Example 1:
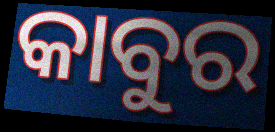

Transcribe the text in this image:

କାବୁର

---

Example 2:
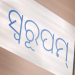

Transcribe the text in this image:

ସ୍ୱରୂପମ୍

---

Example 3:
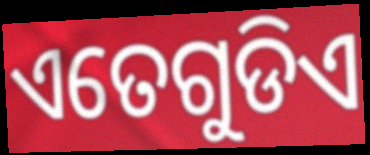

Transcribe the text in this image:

ଏତେଗୁଡିଏ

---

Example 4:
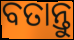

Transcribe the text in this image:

ବତାନ୍ତୁ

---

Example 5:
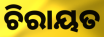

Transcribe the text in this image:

ଚିରାୟତ